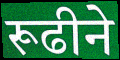
रूढीने